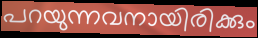
പറയുന്നവനായിരിക്കും